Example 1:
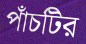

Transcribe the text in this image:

পাঁচটির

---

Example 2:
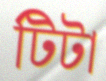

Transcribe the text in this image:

টিটা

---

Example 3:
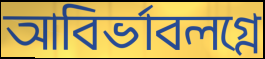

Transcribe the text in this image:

আবির্ভাবলগ্নে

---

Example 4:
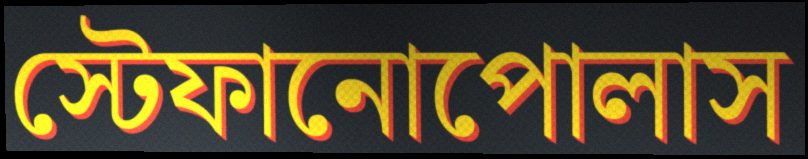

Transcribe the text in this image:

স্টেফানোপোলাস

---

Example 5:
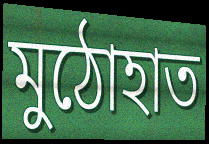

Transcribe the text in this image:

মুঠোহাত